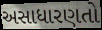
અસાધારણતો